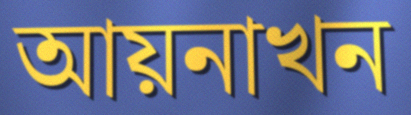
আয়নাখন